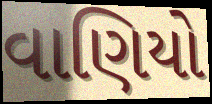
વાણિયો